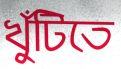
খুঁটিতে